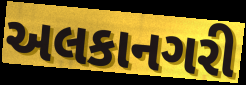
અલકાનગરી